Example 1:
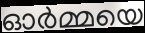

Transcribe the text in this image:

ഓർമ്മയെ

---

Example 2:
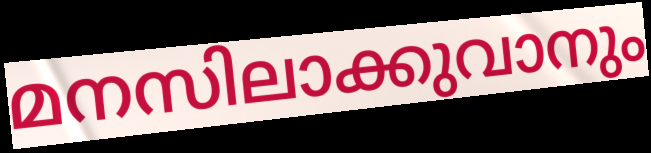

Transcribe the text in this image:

മനസിലാക്കുവാനും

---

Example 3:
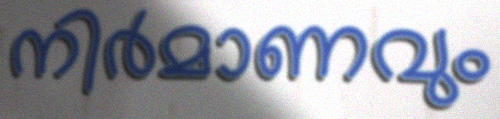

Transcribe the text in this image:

നിർമാണവും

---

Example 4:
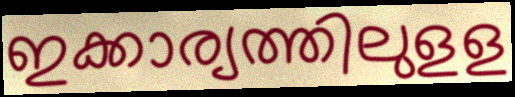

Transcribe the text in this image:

ഇക്കാര്യത്തിലുളള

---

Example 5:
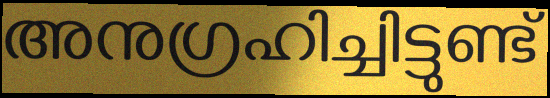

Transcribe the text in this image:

അനുഗ്രഹിച്ചിട്ടുണ്ട്